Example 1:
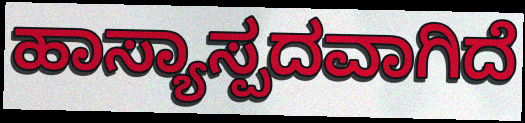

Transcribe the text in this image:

ಹಾಸ್ಯಾಸ್ಪದವಾಗಿದೆ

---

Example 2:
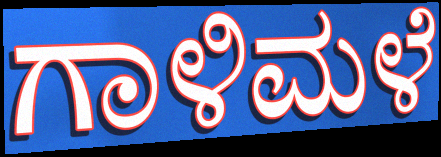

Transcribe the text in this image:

ಗಾಳಿಮಳೆ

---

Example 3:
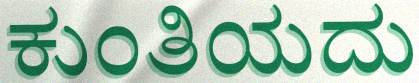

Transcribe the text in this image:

ಕುಂತಿಯದು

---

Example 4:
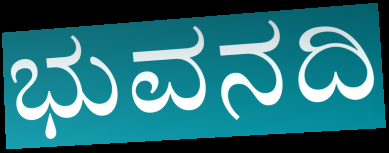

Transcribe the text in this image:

ಭುವನದಿ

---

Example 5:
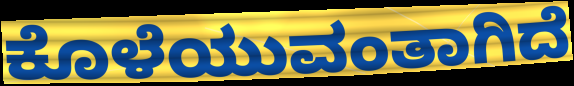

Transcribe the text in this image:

ಕೊಳೆಯುವಂತಾಗಿದೆ